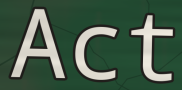
Act